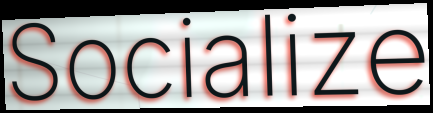
Socialize